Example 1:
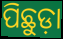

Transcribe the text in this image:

ପିଛୁଡ଼ା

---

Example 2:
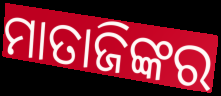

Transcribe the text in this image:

ମାତାଜିଙ୍କର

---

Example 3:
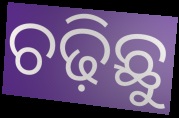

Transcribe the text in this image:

ଚଢ଼ିଛୁ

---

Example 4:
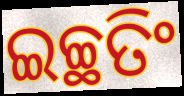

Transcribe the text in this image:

ଇଚ୍ଛତିଂ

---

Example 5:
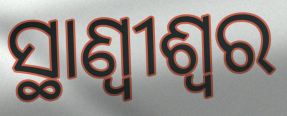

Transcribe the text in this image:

ସ୍ଥାଣ୍ୱୀଶ୍ଵର